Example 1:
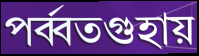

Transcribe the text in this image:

পর্ব্বতগুহায়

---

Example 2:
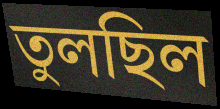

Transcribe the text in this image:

তুলছিল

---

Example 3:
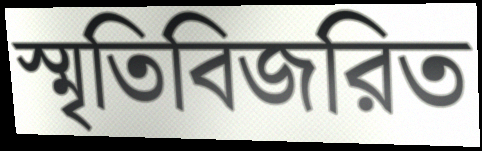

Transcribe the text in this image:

স্মৃতিবিজরিত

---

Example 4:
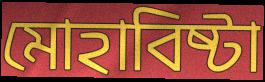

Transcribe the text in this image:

মোহাবিষ্টা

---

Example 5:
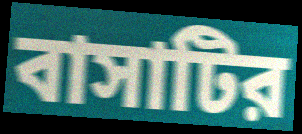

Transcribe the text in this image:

বাসাটির